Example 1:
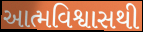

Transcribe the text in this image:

આત્મવિશ્વાસથી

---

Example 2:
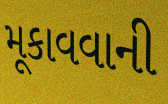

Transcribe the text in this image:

મૂકાવવાની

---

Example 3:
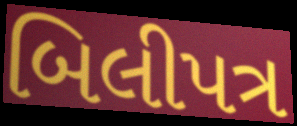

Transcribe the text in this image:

બિલીપત્ર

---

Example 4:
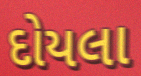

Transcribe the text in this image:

દોયલા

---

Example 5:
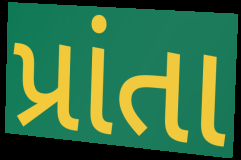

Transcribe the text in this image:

પ્રાંતા